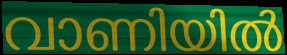
വാണിയിൽ